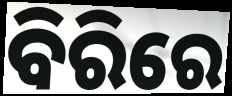
ବିରିରେ